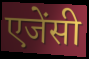
एजेंसी